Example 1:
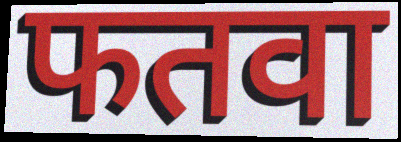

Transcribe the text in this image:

फतवा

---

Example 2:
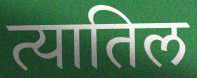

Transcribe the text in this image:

त्यातिल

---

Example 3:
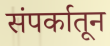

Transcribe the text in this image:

संपर्कातून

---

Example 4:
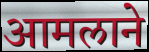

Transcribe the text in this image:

आमलाने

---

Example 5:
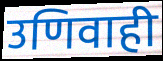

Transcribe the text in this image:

उणिवाही